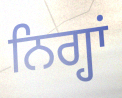
ਨਿਗ੍ਹਾਂ